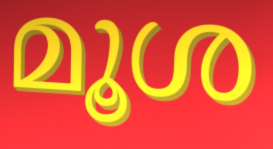
മൂശ